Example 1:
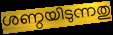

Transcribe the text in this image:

ശണ്ഠയിടുന്നതു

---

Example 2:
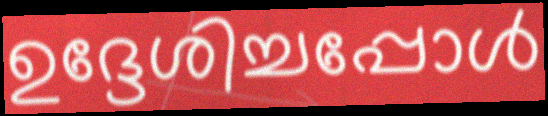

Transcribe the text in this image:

ഉദ്ദേശിച്ചപ്പോൾ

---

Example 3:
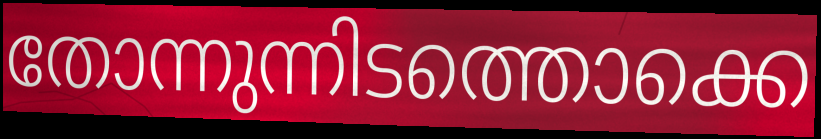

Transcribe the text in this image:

തോന്നുന്നിടത്തൊക്കെ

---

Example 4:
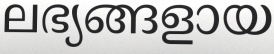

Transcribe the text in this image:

ലഭ്യങ്ങളായ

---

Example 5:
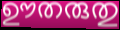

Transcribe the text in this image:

ഊതരുതു